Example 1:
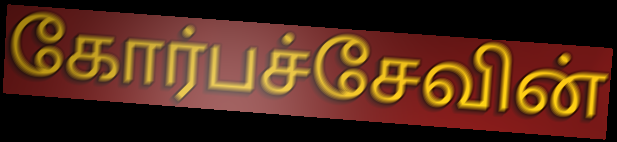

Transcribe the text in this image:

கோர்பச்சேவின்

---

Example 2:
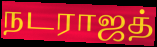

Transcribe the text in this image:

நடராஜத்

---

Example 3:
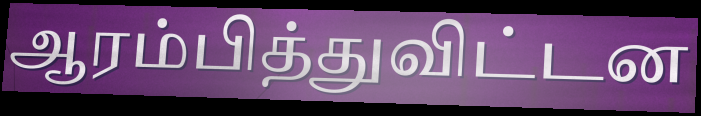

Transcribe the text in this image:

ஆரம்பித்துவிட்டன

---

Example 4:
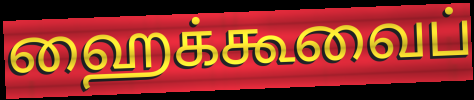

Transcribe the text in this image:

ஹைக்கூவைப்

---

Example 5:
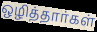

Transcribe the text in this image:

ஒழித்தார்கள்